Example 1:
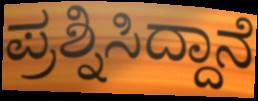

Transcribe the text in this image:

ಪ್ರಶ್ನಿಸಿದ್ದಾನೆ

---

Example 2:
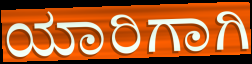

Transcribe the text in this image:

ಯಾರಿಗಾಗಿ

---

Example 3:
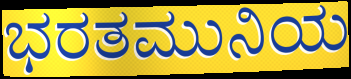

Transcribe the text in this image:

ಭರತಮುನಿಯ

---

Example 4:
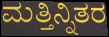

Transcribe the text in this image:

ಮತ್ತಿನ್ನಿತರ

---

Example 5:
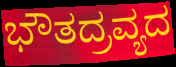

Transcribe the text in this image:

ಭೌತದ್ರವ್ಯದ